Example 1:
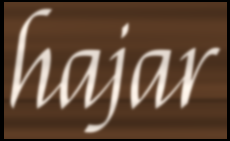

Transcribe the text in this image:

hajar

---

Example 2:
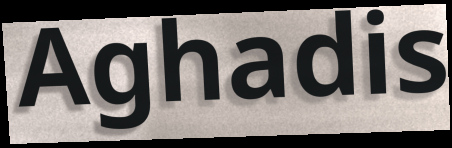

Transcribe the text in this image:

Aghadis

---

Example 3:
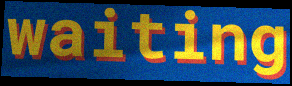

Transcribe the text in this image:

waiting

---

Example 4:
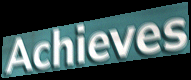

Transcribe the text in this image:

Achieves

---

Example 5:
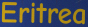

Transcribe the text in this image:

Eritrea